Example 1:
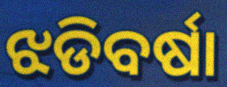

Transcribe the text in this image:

ଝଡିବର୍ଷା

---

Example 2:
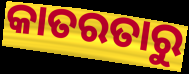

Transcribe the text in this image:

କାତରତାରୁ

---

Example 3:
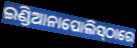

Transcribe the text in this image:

ଇଣ୍ଡିଆନାପୋଲିସ୍‍ଠାରେ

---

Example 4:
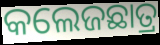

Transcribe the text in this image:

କଲେଜଛାତ୍ର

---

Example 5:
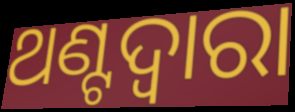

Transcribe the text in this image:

ଥଣ୍ଟଦ୍ୱାରା